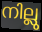
നില്ലു